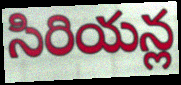
సిరియన్ల